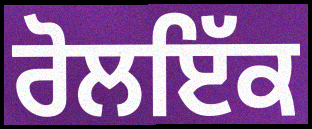
ਰੋਲਇੱਕ